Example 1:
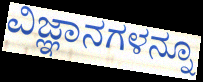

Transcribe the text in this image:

ವಿಜ್ಞಾನಗಳನ್ನೂ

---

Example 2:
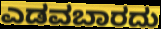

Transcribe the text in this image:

ಎಡವಬಾರದು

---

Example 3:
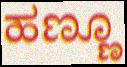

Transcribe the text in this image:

ಹಣ್ಣೂ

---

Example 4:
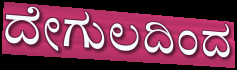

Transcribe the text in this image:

ದೇಗುಲದಿಂದ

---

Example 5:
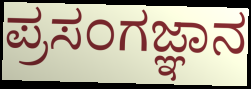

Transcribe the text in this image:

ಪ್ರಸಂಗಜ್ಞಾನ